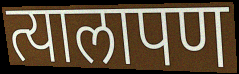
त्यालापण